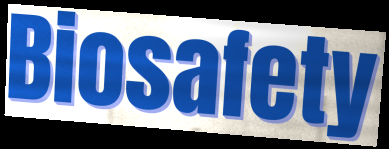
Biosafety